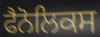
ਫੈਨੋਲਿਕਸ